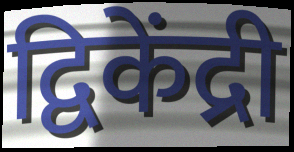
द्विकेंद्री